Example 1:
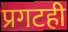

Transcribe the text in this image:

प्रगटही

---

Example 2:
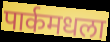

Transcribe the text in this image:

पार्कमधला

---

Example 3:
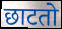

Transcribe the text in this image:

छाटतो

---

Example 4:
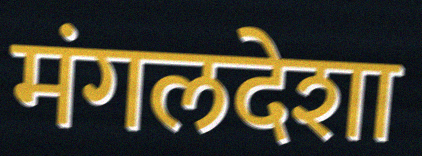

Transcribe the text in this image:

मंगलदेशा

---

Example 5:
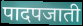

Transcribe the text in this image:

पादपजाती